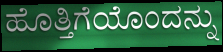
ಹೊತ್ತಿಗೆಯೊಂದನ್ನು